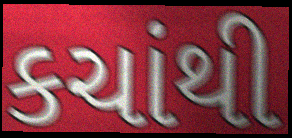
કચાંથી